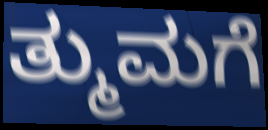
ತ್ಮುಮಗೆ